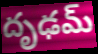
దృఢమ్